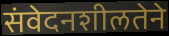
संवेदनशीलतेने